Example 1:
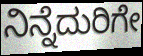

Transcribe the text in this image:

ನಿನ್ನೆದುರಿಗೇ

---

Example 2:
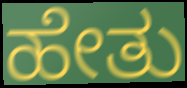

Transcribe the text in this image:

ಹೇತು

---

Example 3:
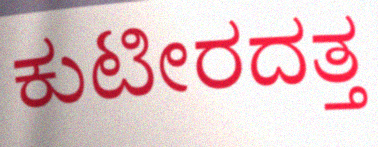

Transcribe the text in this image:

ಕುಟೀರದತ್ತ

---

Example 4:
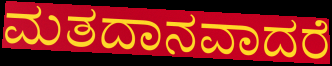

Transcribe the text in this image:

ಮತದಾನವಾದರೆ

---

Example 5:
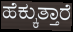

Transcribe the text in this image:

ಹೆಕ್ಕುತ್ತಾರೆ